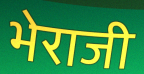
भेराजी